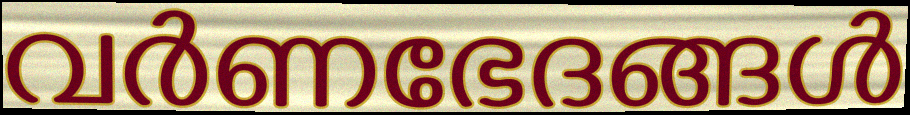
വർണഭേദങ്ങൾ